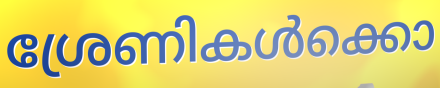
ശ്രേണികൾക്കൊ